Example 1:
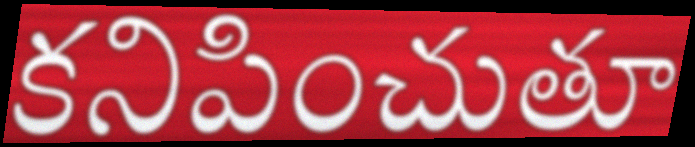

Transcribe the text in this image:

కనిపించుతూ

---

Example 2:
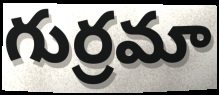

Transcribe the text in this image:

గుర్రమా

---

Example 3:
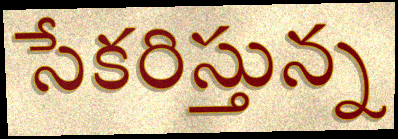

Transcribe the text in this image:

సేకరిస్తున్న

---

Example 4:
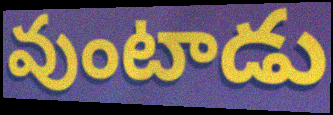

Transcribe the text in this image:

వుంటాడు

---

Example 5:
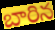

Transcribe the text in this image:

బారిన